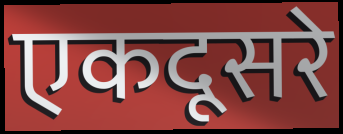
एकदूसरे